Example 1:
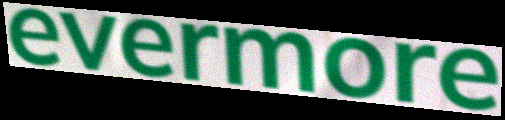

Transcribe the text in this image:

evermore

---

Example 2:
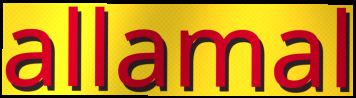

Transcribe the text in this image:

allamal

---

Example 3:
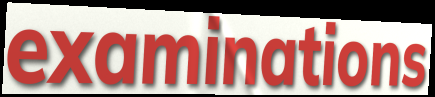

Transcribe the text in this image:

examinations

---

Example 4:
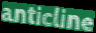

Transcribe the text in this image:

anticline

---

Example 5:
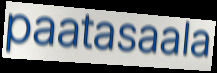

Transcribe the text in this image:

paatasaala